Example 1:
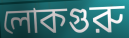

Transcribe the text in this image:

লোকগুরু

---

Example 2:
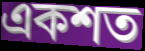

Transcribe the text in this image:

একশত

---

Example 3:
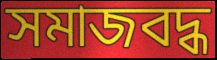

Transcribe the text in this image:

সমাজবদ্ধ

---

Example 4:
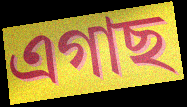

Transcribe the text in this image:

এগাছ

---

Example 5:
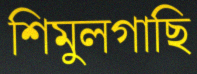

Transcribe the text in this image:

শিমুলগাছি